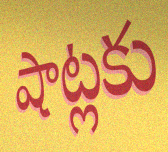
షాట్లకు